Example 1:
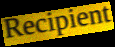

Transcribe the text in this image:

Recipient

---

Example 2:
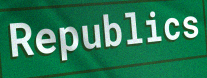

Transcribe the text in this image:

Republics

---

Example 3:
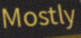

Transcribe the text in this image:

Mostly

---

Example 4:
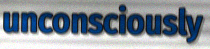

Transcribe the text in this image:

unconsciously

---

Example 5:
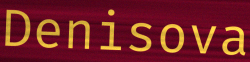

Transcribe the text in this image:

Denisova